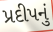
પ્રદીપનું